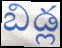
బిడ్ల